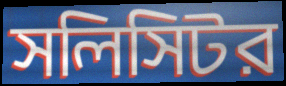
সলিসিটর